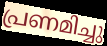
പ്രണമിച്ചു